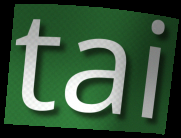
tai